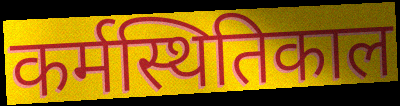
कर्मस्थितिकाल